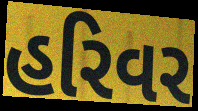
હરિવર